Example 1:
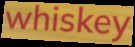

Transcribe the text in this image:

whiskey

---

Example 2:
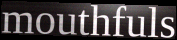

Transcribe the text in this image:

mouthfuls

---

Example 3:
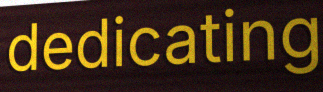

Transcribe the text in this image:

dedicating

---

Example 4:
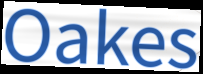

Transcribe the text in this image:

Oakes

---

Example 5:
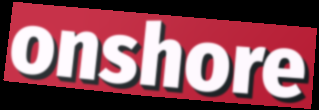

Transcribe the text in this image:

onshore